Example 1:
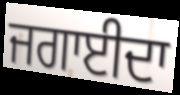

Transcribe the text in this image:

ਜਗਾਈਦਾ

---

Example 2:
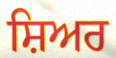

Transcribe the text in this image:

ਸ਼ਿਅਰ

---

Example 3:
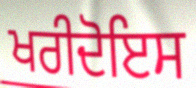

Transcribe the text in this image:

ਖਰੀਦੋਇਸ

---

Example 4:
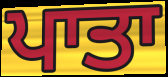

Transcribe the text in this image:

ਪਾਤਾ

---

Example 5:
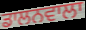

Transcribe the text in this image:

ਡਾਲਨਵਾਲਾ